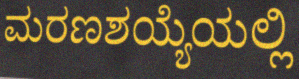
ಮರಣಶಯ್ಯೆಯಲ್ಲಿ